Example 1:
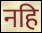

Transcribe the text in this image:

नहि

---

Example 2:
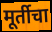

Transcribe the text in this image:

मूर्तीचा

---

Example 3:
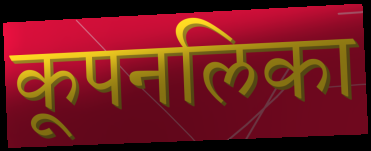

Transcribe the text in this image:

कूपनलिका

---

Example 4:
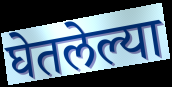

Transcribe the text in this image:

घेतलेल्या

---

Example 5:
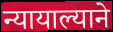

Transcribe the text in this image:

न्यायाल्याने